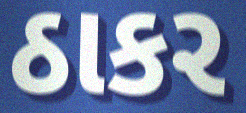
ઠાકર